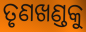
ତୃଣଖଣ୍ଡକୁ